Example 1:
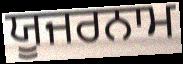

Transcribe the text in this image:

ਯੂਜਰਨਾਮ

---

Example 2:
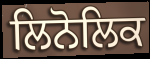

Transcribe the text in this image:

ਲਿਨੋਲਿਕ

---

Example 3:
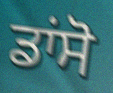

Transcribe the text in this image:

ਡਾਂਸੋ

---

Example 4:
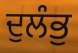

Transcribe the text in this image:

ਦੁਲੰਭੁ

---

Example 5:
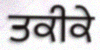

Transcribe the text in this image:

ਤਕੀਕੇ